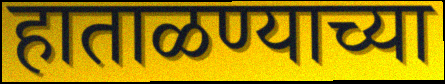
हाताळण्याच्या